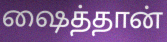
ஷைத்தான்